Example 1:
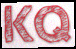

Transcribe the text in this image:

KQ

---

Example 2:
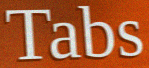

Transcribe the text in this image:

Tabs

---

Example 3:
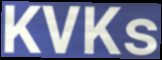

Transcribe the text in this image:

KVKs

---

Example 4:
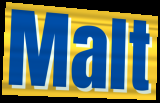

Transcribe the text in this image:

Malt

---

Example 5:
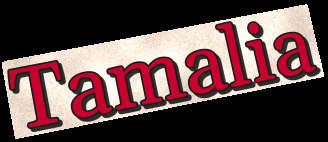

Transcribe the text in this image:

Tamalia